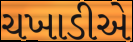
ચખાડીએ